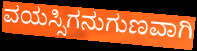
ವಯಸ್ಸಿಗನುಗುಣವಾಗಿ